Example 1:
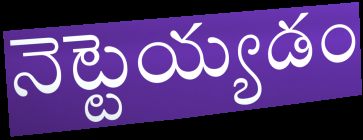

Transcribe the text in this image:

నెట్టెయ్యడం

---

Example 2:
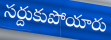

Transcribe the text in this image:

సర్దుకుపోయారు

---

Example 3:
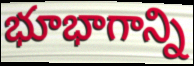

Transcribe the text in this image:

భూభాగాన్ని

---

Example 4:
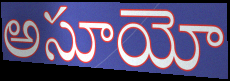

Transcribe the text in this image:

అసూయో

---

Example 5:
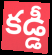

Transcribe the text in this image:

కడ్డీ